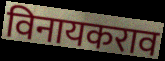
विनायकराव